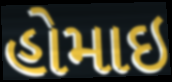
હોમાઇ